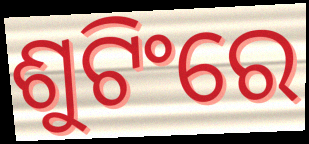
ଶୁଟିଂରେ